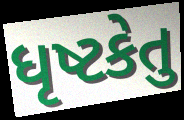
ધૃષ્ટકેતુ